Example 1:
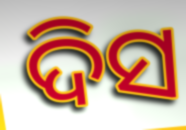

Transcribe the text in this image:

ଦିସ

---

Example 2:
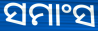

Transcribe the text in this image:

ସମାଂସ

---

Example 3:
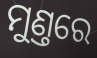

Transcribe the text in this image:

ମୁଣ୍ତରେ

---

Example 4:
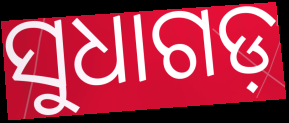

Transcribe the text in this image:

ସୁଧାଗଡ଼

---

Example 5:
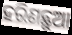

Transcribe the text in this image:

ହରିଣଛୁଆ